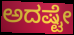
ಅದಷ್ಟೇ